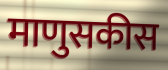
माणुसकीस